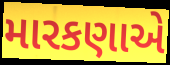
મારકણાએ